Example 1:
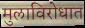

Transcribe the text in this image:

मुलाविरोधात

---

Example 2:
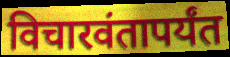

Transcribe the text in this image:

विचारवंतापर्यंत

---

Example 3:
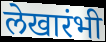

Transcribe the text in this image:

लेखारंभी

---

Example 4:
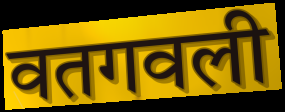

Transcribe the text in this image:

वतगवली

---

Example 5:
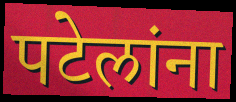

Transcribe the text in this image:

पटेलांना